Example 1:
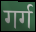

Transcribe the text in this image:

गर्ग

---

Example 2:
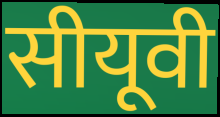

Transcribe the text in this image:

सीयूवी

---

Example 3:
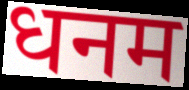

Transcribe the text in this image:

धनम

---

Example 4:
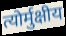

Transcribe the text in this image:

त्योर्मुक्षीय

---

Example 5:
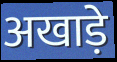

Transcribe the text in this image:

अखाड़े